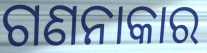
ଗଣନାକାର